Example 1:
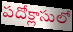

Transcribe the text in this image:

పదోక్లాసులో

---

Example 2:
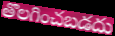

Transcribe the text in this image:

తొలగించబడదు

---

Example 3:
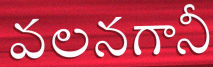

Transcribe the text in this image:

వలనగానీ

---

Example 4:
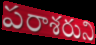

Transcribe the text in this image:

పరాశరుని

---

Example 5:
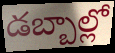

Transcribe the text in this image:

డబ్బాల్లో